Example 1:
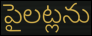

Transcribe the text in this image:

పైలట్లను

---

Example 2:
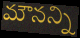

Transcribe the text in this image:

మౌనన్ని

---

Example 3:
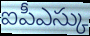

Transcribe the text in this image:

ఐపీఎస్కు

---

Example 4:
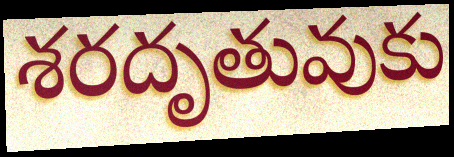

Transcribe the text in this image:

శరదృతువుకు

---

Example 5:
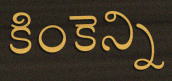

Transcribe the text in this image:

కింకెన్ని